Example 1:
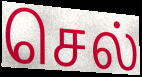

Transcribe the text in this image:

செல்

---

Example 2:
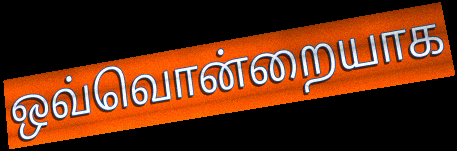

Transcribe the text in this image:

ஒவ்வொன்றையாக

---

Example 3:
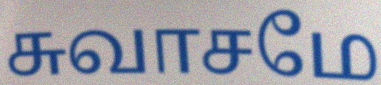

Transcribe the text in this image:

சுவாசமே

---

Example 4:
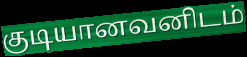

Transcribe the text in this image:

குடியானவனிடம்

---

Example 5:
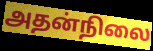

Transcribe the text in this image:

அதன்நிலை